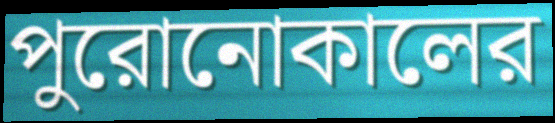
পুরোনোকালের